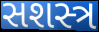
સશસ્ત્ર